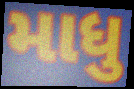
માધુ